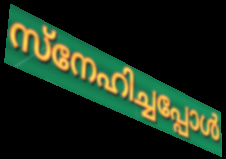
സ്നേഹിച്ചപ്പോൾ